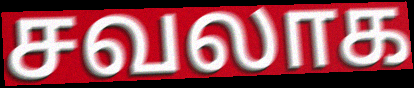
சவலாக